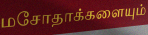
மசோதாக்களையும்